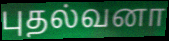
புதல்வனா